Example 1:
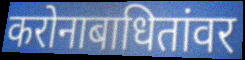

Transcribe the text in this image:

करोनाबाधितांवर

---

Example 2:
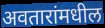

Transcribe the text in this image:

अवतारांमधील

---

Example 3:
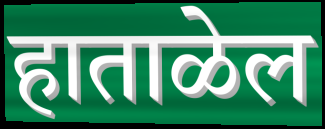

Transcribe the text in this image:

हाताळेल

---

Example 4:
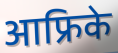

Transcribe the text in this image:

आफ्रिके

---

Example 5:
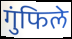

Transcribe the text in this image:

गुंफिले